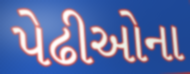
પેઢીઓના